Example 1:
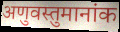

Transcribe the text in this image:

अणुवस्तुमानांक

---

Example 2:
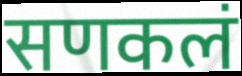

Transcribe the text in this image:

सणकलं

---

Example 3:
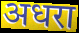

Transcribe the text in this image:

अधरा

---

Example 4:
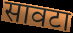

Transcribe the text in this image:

सावटा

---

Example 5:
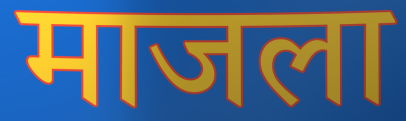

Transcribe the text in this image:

माजला